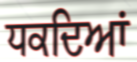
ਧਕਦਿਆਂ